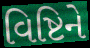
વિષ્ટિને